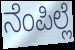
ನೆಂಪಿಲ್ಲೆ